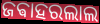
ଜଵାହରଲାଲ